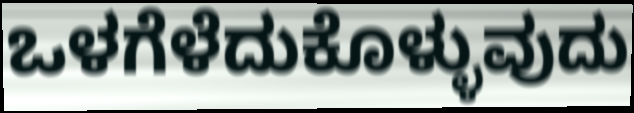
ಒಳಗೆಳೆದುಕೊಳ್ಳುವುದು